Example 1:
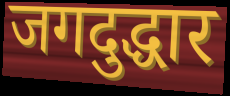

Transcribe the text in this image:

जगदुद्धार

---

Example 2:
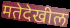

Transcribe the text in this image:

मतेदेखील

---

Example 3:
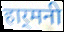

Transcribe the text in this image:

हार्मनी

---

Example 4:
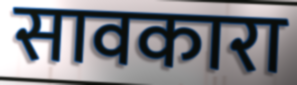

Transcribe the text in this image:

सावकारा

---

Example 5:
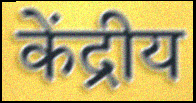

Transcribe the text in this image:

केंद्रीय